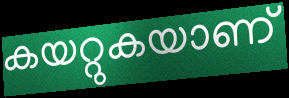
കയറ്റുകയാണ്